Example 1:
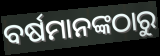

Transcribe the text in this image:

ବର୍ଷମାନଙ୍କଠାରୁ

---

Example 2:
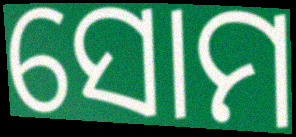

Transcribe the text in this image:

ସୋମ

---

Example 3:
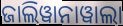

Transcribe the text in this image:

ଜାଲିୱାନାୱାଲା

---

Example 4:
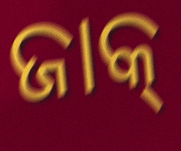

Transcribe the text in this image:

ଜାକ୍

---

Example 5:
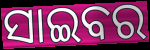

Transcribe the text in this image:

ସାଇବର